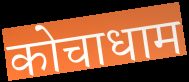
कोचाधाम